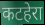
कटहेरा